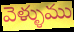
వెళ్ళుము